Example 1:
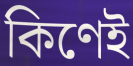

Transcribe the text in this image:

কিণেই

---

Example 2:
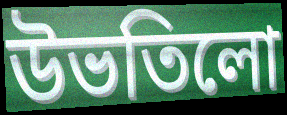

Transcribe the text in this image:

উভতিলো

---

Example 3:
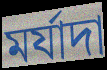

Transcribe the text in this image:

মৰ্যাদা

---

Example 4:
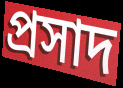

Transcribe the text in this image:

প্ৰসাদ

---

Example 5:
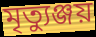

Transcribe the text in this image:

মৃত্যুঞ্জয়